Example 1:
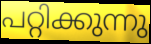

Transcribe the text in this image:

പറ്റിക്കുന്നു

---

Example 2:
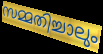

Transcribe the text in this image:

സമ്മതിച്ചാലും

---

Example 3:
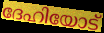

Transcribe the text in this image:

ദേഹിയോട്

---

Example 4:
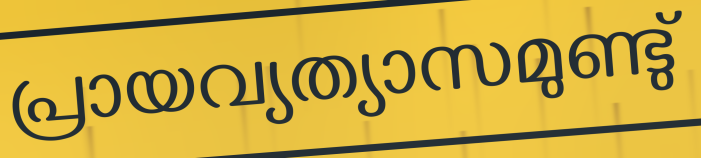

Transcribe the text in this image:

പ്രായവ്യത്യാസമുണ്ടു്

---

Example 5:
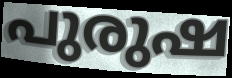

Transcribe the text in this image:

പുരുഷ